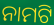
ନାମଟି